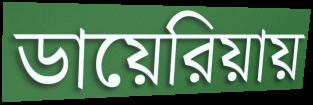
ডায়েরিয়ায়